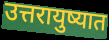
उत्तरायुष्यात